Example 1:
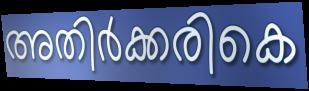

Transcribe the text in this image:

അതിർക്കരികെ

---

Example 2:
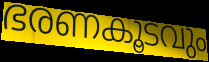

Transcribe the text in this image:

ഭരണകൂടവും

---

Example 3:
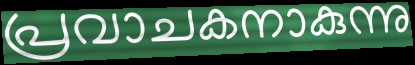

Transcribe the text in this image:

പ്രവാചകനാകുന്നു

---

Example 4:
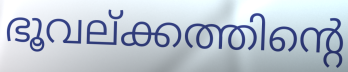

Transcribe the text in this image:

ഭൂവല്ക്കത്തിന്റെ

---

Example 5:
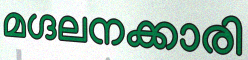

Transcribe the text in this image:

മഗ്ദലനക്കാരി